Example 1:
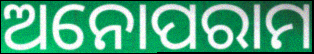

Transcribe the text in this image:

ଅନୋପରାମ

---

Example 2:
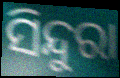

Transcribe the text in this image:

ସିନ୍ଦୁରା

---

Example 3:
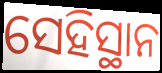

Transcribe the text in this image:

ସେହିସ୍ଥାନ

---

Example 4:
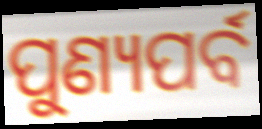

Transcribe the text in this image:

ପୁଣ୍ୟପର୍ବ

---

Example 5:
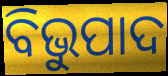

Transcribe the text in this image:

ବିଭୁପାଦ